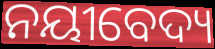
ନୟୀବେଦ୍ୟ